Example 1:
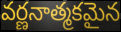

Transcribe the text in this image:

వర్ణనాత్మకమైన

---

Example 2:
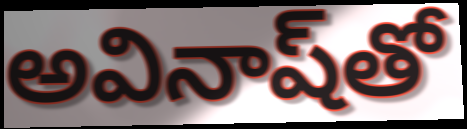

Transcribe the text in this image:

అవినాష్‌తో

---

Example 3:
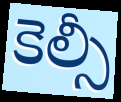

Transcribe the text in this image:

కెల్సీ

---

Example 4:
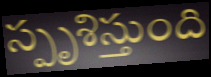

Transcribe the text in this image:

స్పృశిస్తుంది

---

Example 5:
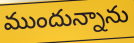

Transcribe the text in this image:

ముందున్నాను